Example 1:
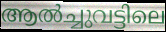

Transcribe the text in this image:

ആൽച്ചുവട്ടിലെ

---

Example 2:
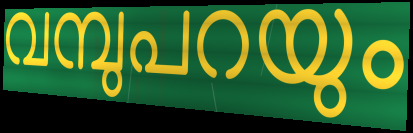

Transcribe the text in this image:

വമ്പുപറയും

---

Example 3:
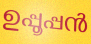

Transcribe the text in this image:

ഉപ്പൂപ്പൻ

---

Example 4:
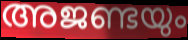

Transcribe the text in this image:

അജണ്ടയും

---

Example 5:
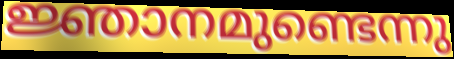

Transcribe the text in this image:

ജ്ഞാനമുണ്ടെന്നു